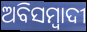
ଅବିସମ୍ବାଦୀ